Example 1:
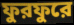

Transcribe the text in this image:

ফুরফুরে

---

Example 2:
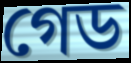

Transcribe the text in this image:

গেড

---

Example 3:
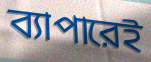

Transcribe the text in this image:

ব্যাপারেই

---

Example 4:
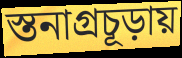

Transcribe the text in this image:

স্তনাগ্রচূড়ায়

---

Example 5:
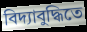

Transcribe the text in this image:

বিদ্যাবুদ্ধিতে